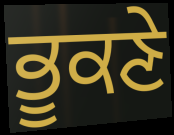
ਭੂਕਣੇ